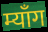
म्याँग